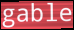
gable